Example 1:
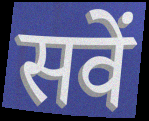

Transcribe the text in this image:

सवें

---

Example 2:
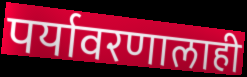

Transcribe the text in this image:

पर्यावरणालाही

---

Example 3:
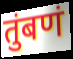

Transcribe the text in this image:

तुंबणं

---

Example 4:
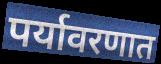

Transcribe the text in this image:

पर्यावरणात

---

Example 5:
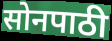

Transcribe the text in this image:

सोनपाठी